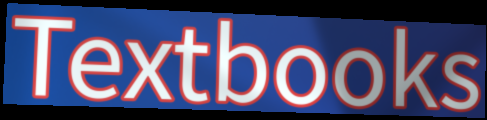
Textbooks